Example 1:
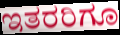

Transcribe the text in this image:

ಇತರರಿಗೂ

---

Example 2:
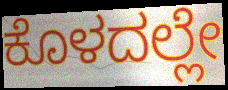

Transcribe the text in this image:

ಕೊಳದಲ್ಲೇ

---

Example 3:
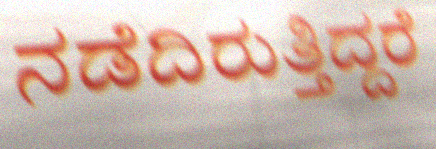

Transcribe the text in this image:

ನಡೆದಿರುತ್ತಿದ್ದರೆ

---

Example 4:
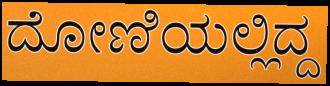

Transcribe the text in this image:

ದೋಣಿಯಲ್ಲಿದ್ದ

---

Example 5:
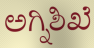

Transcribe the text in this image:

ಅಗ್ನಿಶಿಖೆ